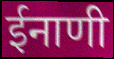
ईनाणी